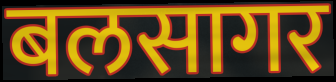
बलसागर